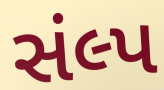
સંલ્પ